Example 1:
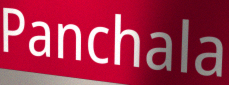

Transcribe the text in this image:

Panchala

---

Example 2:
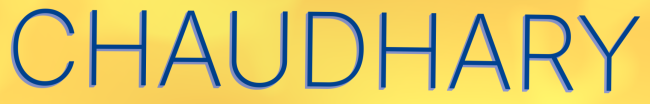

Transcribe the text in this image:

CHAUDHARY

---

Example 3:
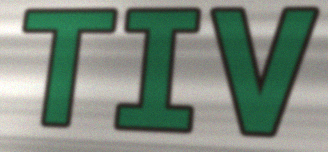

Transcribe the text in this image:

TIV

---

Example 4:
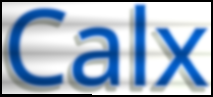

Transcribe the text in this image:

Calx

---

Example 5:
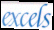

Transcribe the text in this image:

excels